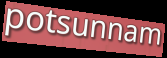
potsunnam